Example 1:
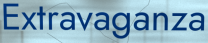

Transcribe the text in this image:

Extravaganza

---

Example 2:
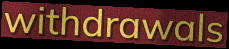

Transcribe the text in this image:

withdrawals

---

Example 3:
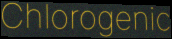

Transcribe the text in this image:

Chlorogenic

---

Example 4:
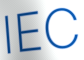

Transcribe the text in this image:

IEC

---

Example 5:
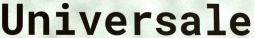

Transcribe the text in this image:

Universale